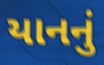
યાનનું